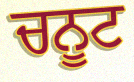
ਚਨੂਟ